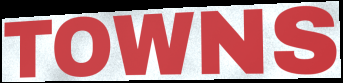
TOWNS